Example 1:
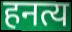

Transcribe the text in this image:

हनत्य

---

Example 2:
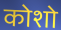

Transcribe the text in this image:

कोशो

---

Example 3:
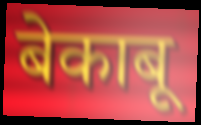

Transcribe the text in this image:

बेकाबू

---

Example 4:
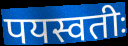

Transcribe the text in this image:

पयस्वतीः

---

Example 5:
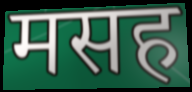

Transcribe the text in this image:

मसह